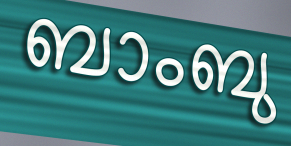
ബാംബു